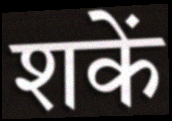
शकें